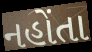
નહોંતા